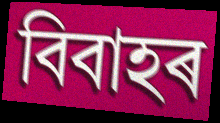
বিবাহৰ